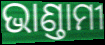
ଭାଣ୍ଡାମୀ